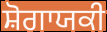
ਸ਼ੋਗਾਯਕੀ